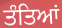
ਤੰਤਿਆਂ